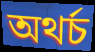
অথৰ্চ